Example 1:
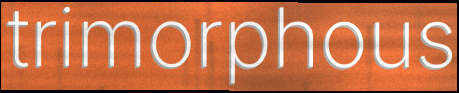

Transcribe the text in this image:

trimorphous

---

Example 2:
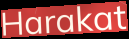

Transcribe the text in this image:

Harakat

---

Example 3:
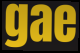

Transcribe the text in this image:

gae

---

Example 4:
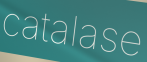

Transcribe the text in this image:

catalase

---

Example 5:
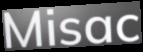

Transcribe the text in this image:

Misac